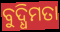
ବୁଦ୍ଧିମତା